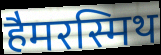
हैमरस्मिथ